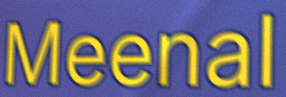
Meenal